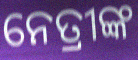
ନେତ୍ରୀଙ୍କ